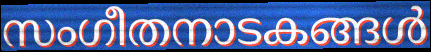
സംഗീതനാടകങ്ങൾ